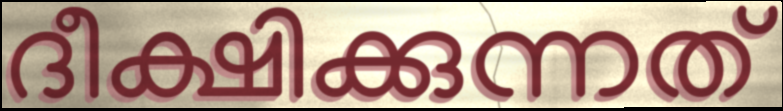
ദീക്ഷിക്കുന്നത്